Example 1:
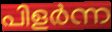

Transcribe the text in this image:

പിളർന്ന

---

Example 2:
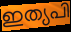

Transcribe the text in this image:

ഇത്യപി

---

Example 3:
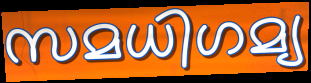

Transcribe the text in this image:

സമധിഗമ്യ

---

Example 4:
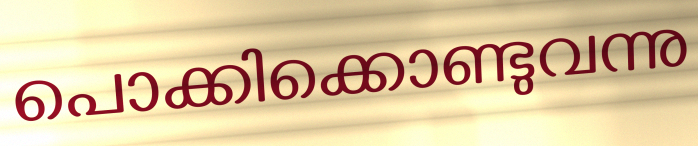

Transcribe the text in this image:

പൊക്കിക്കൊണ്ടുവന്നു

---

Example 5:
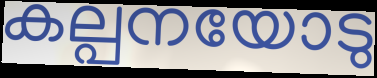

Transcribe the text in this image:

കല്പനയോടു